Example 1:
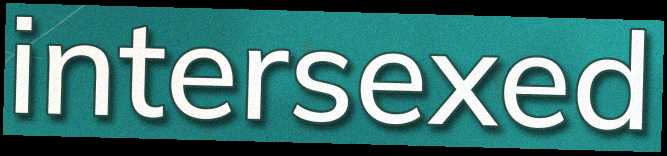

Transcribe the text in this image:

intersexed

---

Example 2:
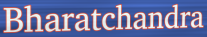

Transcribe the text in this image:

Bharatchandra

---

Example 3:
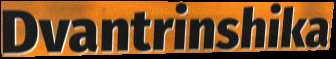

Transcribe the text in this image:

Dvantrinshika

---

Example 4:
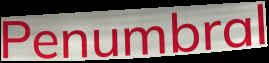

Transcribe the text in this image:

Penumbral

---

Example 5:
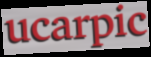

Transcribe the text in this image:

ucarpic